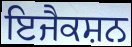
ਇਜੈਕਸ਼ਨ